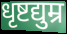
धृष्टद्युम्र